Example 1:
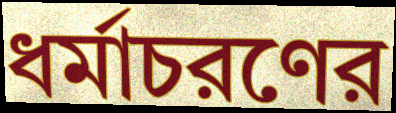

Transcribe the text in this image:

ধর্মাচরণের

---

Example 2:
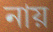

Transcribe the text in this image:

নায়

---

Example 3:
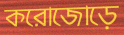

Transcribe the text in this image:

করোজোড়ে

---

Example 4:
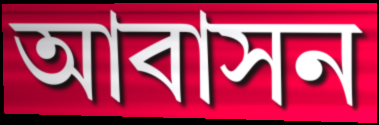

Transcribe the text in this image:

আবাসন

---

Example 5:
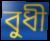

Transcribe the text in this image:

বুধী